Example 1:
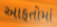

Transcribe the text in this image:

આફતોમાં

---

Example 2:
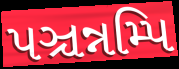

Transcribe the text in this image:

પઞ્ચન્નમ્પિ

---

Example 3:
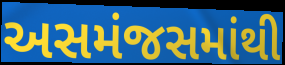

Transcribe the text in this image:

અસમંજસમાંથી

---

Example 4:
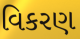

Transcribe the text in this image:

વિકરણ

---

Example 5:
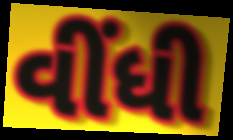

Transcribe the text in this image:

વીંધી